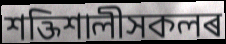
শক্তিশালীসকলৰ